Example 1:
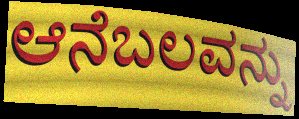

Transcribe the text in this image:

ಆನೆಬಲವನ್ನು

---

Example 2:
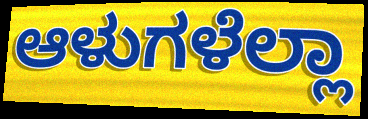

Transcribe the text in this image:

ಆಳುಗಳೆಲ್ಲಾ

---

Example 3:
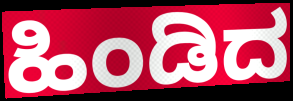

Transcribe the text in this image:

ಹಿಂಡಿದ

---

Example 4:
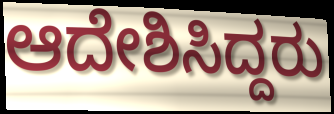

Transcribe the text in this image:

ಆದೇಶಿಸಿದ್ದರು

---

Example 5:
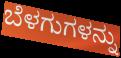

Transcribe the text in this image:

ಬೆಳಗುಗಳನ್ನು